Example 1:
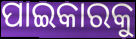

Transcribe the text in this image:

ପାଇକାରକୁ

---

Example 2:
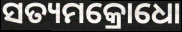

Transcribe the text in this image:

ସତ୍ୟମକ୍ରୋଧୋ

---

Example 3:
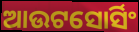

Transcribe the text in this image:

ଆଉଟସୋର୍ସିଂ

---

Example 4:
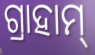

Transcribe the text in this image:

ଗ୍ରାହାମ୍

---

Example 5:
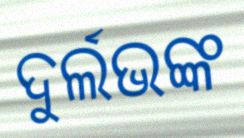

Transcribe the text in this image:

ଦୁର୍ଲଭଙ୍କ